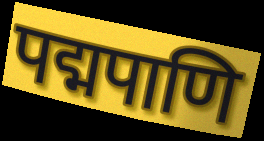
पद्मपाणि